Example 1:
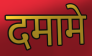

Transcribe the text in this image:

दमामे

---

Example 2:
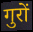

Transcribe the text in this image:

गुरों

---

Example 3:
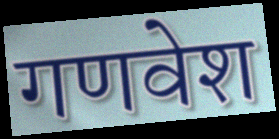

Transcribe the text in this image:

गणवेश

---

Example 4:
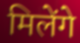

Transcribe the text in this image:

मिलेंगे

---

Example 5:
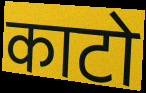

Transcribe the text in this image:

काटो